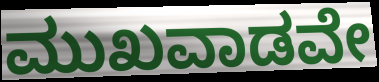
ಮುಖವಾಡವೇ